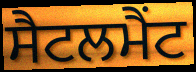
ਸੈਟਲਮੈਂਟ